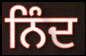
ਨਿੰਦ